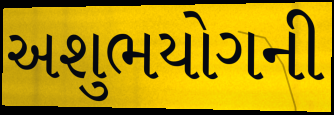
અશુભયોગની